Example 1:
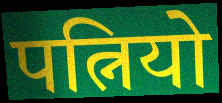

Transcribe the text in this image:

पत्नियो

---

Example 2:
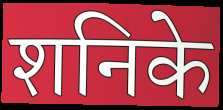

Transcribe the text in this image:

शनिके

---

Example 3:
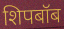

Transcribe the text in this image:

शिपबॉब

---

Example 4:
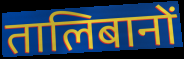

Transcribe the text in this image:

तालिबानों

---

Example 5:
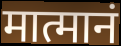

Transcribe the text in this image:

मात्मानं